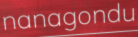
nanagondu